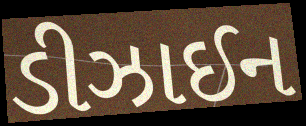
ડીઝાઈન